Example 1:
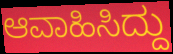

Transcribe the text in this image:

ಆವಾಹಿಸಿದ್ದು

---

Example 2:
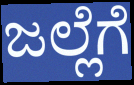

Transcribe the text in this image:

ಜಲ್ಲೆಗೆ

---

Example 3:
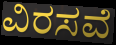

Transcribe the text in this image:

ವಿರಸವೆ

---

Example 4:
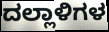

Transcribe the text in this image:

ದಲ್ಲಾಳಿಗಳ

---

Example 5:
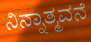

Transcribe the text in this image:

ನಿನ್ನಾತ್ಮವನೆ